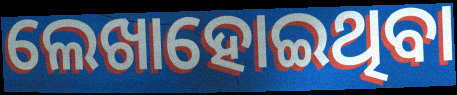
ଲେଖାହୋଇଥିବା